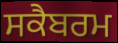
ਸਕੈਬਰਮ